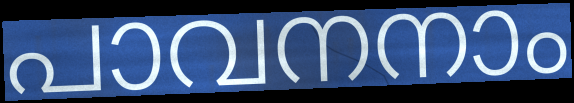
പാവനനാം